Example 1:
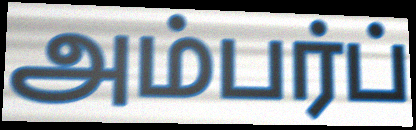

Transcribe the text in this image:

அம்பர்ப்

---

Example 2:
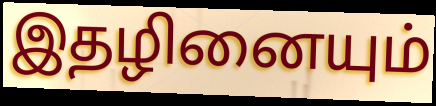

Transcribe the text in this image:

இதழினையும்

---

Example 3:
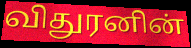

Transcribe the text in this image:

விதுரனின்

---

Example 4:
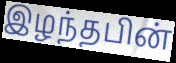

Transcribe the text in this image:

இழந்தபின்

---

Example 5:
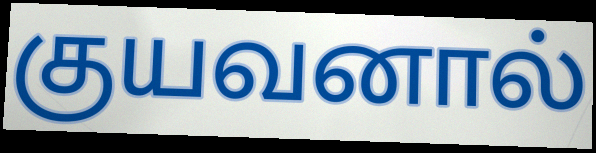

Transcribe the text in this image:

குயவனால்